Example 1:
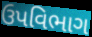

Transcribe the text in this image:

ઉપવિભાગ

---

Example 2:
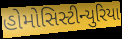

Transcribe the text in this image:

હોમોસિસ્ટીન્યુરિયા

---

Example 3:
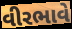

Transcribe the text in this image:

વીરભાવે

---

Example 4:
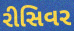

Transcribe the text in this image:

રીસિવર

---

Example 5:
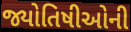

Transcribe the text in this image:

જ્યોતિષીઓની